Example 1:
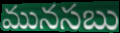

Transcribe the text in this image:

మునసబు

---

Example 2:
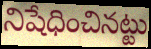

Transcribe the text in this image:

నిషేధించినట్టు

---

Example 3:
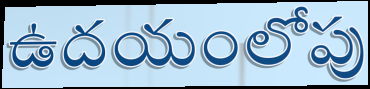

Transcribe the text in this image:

ఉదయంలోపు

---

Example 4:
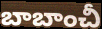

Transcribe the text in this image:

బాబాంచీ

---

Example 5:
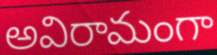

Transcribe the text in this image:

అవిరామంగా